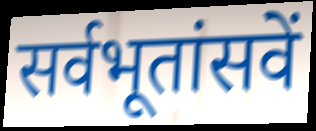
सर्वभूतांसवें